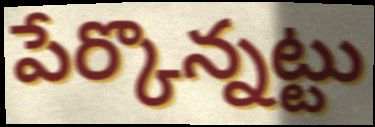
పేర్కొన్నట్టు